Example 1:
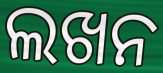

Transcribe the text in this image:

ଲଖନ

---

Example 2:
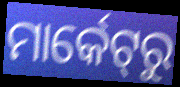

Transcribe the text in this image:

ମାର୍କେଟ୍‌ରୁ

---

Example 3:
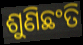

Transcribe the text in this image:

ଶୁଣିଛଂତି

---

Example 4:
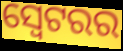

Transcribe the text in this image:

ସ୍ୱେଟରର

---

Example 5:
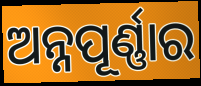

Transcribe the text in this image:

ଅନ୍ନପୂର୍ଣ୍ଣାର